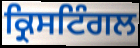
ਕ੍ਰਿਸਟਿੰਗਲ